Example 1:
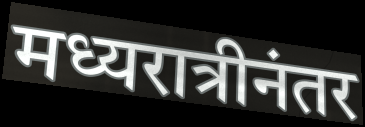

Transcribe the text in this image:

मध्यरात्रीनंतर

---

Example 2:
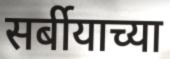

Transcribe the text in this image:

सर्बीयाच्या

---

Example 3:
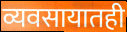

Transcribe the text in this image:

व्यवसायातही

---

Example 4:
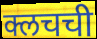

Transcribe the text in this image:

क्लचची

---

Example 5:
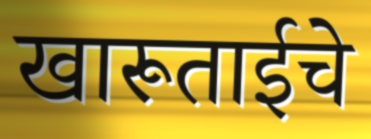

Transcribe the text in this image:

खारूताईचे